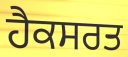
ਹੈਕਸਰਤ